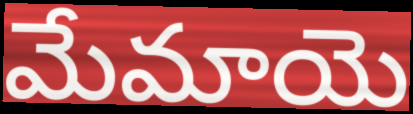
మేమాయె